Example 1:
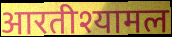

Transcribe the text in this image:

आरतीश्यामल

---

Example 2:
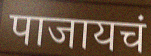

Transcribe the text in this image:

पाजायचं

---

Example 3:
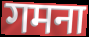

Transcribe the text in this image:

गमना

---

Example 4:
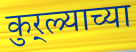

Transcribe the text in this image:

कुर्ल्याच्या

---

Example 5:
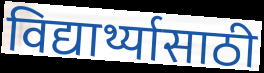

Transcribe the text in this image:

विद्यार्थ्यासाठी